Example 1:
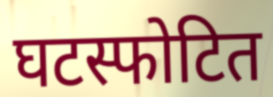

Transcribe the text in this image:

घटस्फोटित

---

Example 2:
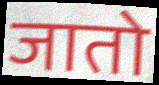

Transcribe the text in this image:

जातो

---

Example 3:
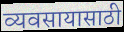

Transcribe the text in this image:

व्यवसायासाठी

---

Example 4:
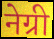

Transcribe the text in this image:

नेग्री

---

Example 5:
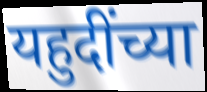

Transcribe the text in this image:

यहुदींच्या